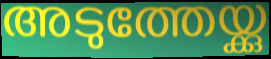
അടുത്തേയ്ക്കു